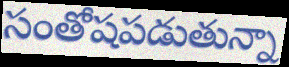
సంతోషపడుతున్నా